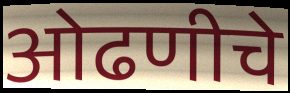
ओढणीचे